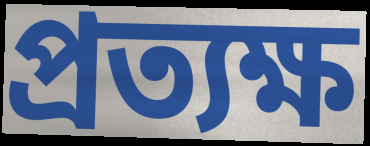
প্রত্যক্ষ